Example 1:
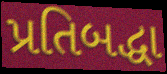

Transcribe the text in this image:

પ્રતિબદ્ધા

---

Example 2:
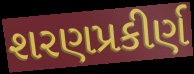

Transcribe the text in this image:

શરણપ્રકીર્ણ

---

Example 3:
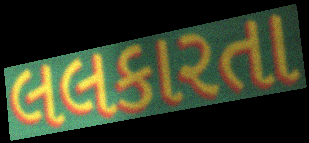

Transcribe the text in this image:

લલકારતા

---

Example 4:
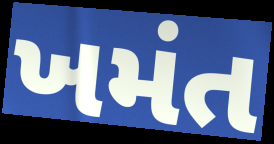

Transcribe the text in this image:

ખમંત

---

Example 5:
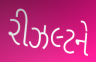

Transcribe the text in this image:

રીઝલ્ટને